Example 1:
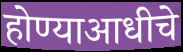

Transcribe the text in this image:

होण्याआधीचे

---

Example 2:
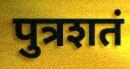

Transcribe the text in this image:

पुत्रशतं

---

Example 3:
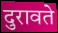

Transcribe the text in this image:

दुरावते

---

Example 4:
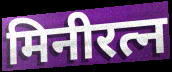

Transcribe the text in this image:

मिनीरत्न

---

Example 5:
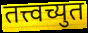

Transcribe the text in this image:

तत्त्वच्युत